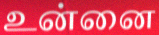
உன்னை